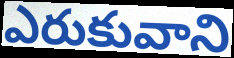
ఎరుకువాని